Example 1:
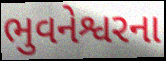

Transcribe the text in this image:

ભુવનેશ્વરના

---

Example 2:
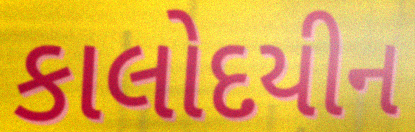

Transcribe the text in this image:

કાલોદયીન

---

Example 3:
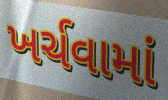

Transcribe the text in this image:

ખર્ચવામાં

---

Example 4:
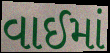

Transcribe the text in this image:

વાઈમાં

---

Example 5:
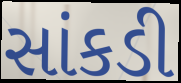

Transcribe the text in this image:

સાંકડી